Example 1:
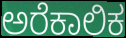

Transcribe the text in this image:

ಅರೆಕಾಲಿಕ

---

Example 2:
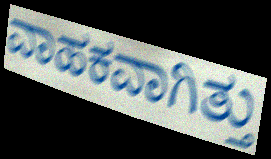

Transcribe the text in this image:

ವಾಹಕವಾಗಿತ್ತು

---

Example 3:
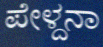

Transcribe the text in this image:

ಪೇಳ್ದನಾ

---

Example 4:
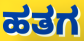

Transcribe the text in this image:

ಹತಗ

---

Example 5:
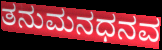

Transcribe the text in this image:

ತನುಮನಧನವ